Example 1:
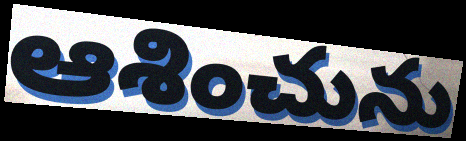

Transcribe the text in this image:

ఆశించును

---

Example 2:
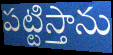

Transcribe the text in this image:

పట్టిస్తాను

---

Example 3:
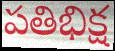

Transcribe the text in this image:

పతిభిక్ష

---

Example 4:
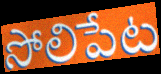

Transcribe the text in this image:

సోలిపేట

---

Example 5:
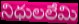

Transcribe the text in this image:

నిధులలేమి